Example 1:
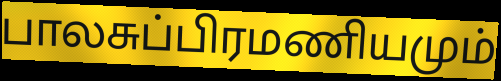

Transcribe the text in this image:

பாலசுப்பிரமணியமும்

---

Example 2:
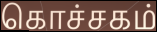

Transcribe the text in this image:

கொச்சகம்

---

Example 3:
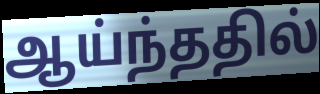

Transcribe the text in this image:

ஆய்ந்ததில்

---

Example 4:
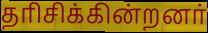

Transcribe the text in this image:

தரிசிக்கின்றனர்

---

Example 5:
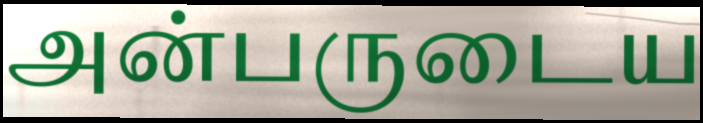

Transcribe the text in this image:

அன்பருடைய